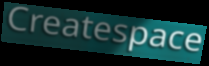
Createspace